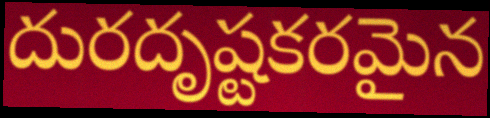
దురదృష్టకరమైన